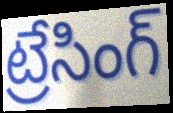
ట్రేసింగ్